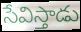
సేవిస్తాడు